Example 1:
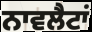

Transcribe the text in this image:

ਨਾਵਲੈਟਾਂ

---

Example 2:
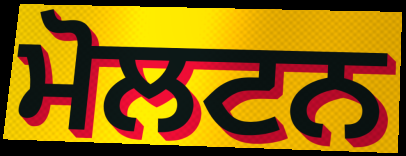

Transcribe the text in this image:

ਮੋਲਟਨ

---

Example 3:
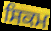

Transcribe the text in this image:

ਸਿਕਮ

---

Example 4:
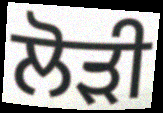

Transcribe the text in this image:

ਲੋੜੀ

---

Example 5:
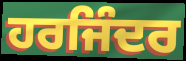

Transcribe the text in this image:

ਹਰਜਿੰਦਰ